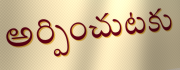
అర్పించుటకు